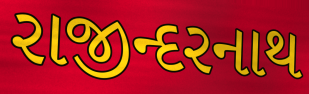
રાજીન્દરનાથ